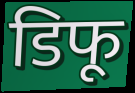
डिफू